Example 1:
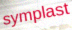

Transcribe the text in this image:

symplast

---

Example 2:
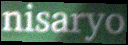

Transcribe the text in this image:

nisaryo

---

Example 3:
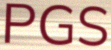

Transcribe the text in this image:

PGS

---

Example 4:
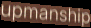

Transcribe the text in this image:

upmanship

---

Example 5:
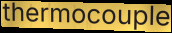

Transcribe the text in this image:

thermocouple